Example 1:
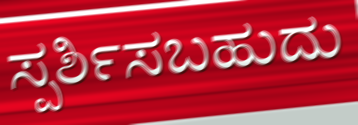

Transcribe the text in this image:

ಸ್ಪರ್ಶಿಸಬಹುದು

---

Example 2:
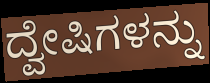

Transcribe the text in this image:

ದ್ವೇಷಿಗಳನ್ನು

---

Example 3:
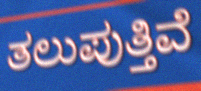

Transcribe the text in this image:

ತಲುಪುತ್ತಿವೆ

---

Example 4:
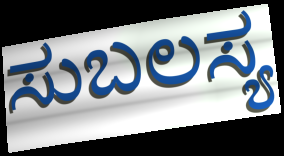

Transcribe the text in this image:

ಸುಬಲಸ್ಯ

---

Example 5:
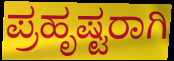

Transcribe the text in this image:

ಪ್ರಹೃಷ್ಟರಾಗಿ